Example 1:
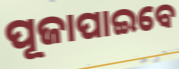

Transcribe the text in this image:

ପୂଜାପାଇବେ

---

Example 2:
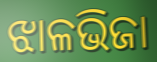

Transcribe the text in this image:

ଝାଳଭିଜା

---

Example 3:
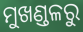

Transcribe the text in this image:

ମୁଖଣ୍ଡଳରୁ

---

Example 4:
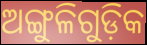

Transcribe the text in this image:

ଅଙ୍ଗୁଳିଗୁଡ଼ିକ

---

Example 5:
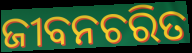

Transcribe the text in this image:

ଜୀବନଚରିତ